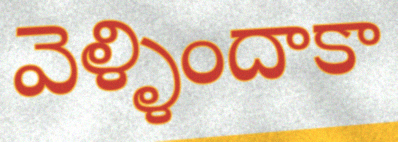
వెళ్ళిందాకా